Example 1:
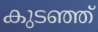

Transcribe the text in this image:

കുടഞ്ഞ്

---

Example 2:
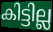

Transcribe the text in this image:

കിട്ടില്ല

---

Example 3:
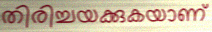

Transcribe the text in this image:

തിരിച്ചയക്കുകയാണ്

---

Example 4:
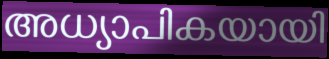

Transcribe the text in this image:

അധ്യാപികയായി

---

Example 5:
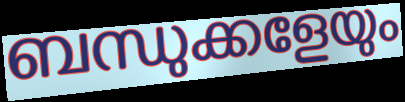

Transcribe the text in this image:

ബന്ധുക്കളേയും